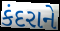
કંદરાને